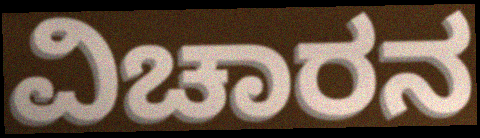
ವಿಚಾರನ